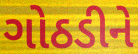
ગોઠડીને